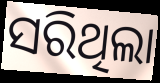
ସରିଥିଲା